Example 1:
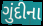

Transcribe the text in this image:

ગુંદીના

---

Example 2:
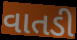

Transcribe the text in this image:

વાતડી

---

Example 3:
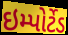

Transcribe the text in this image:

ઇમ્પોર્ટેડ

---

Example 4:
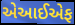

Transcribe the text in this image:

એઆઈએફ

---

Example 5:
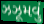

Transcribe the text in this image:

ઝઝૂમવું